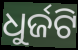
ଧୁର୍ଜଟି